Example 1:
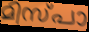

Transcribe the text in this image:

മിസ്പാ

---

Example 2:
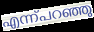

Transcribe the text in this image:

എന്ന്പറഞ്ഞു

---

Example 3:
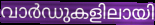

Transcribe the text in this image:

വാർഡുകളിലായി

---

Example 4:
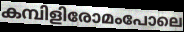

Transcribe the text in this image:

കമ്പിളിരോമംപോലെ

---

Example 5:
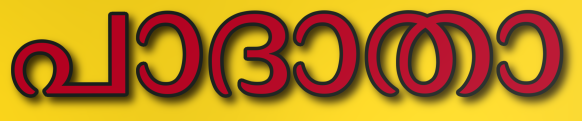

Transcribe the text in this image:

പാദാതാ